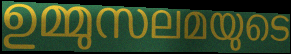
ഉമ്മുസലമയുടെ